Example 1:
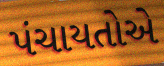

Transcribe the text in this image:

પંચાયતોએ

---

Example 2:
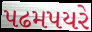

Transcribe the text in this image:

પઢમપયરે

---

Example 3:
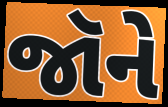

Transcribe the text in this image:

જૉને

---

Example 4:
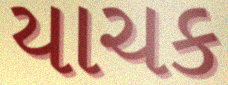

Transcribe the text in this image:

યાચક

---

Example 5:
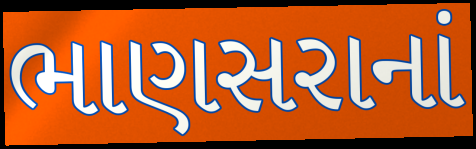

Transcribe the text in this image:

ભાણસરાનાં